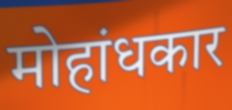
मोहांधकार